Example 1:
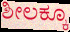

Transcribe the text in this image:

ಶೀಲಕ್ಕೂ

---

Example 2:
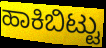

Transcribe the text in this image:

ಹಾಕಿಬಿಟ್ಟು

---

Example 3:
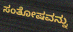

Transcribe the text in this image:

ಸಂತೋಷವನ್ನು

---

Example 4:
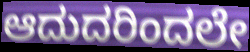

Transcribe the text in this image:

ಆದುದರಿಂದಲೇ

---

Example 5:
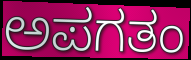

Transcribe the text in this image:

ಅಪಗತಂ